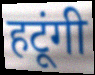
हटूंगी